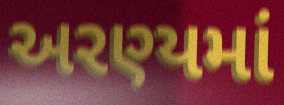
અરણ્યમાં